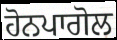
ਹੋਨਪਾਗੋਲ